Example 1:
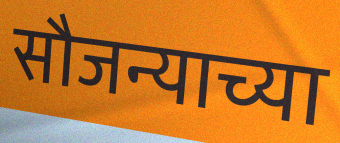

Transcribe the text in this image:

सौजन्याच्या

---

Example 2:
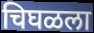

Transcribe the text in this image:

चिघळला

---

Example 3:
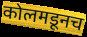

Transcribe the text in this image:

कोलमडूनच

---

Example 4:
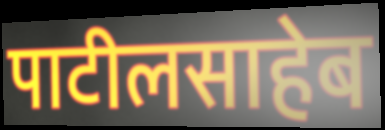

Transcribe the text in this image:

पाटीलसाहेब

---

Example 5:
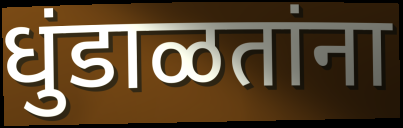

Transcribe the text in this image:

धुंडाळतांना